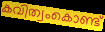
കവിത്വംകൊണ്ട്